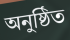
অনুষ্ঠিত